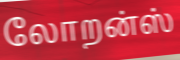
லோறன்ஸ்